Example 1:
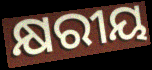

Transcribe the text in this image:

କ୍ଷରୀୟ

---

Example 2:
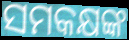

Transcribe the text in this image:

ସମକକ୍ଷଙ୍କ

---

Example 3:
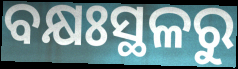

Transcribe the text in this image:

ବକ୍ଷଃସ୍ଥଳରୁ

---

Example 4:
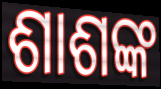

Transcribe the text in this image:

ଶାଶଙ୍କ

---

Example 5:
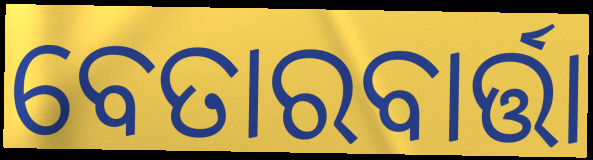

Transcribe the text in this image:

ବେତାରବାର୍ତ୍ତା